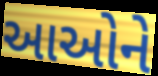
આઓને